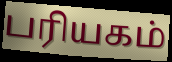
பரியகம்